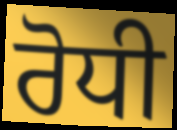
ਰੋਧੀ